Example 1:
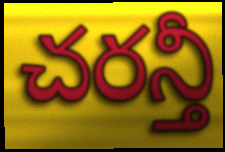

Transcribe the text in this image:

చరన్తీ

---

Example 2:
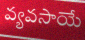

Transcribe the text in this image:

వ్యవసాయే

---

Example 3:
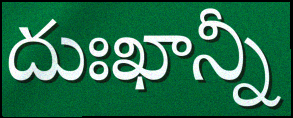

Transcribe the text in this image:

దుఃఖాన్నీ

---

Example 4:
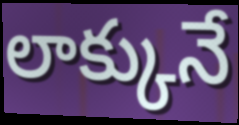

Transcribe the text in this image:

లాక్కునే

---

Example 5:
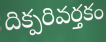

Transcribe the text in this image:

దిక్పరివర్తకం